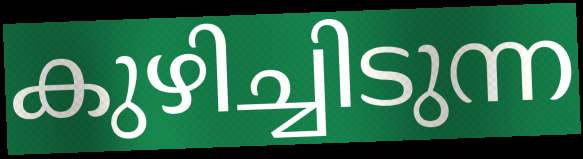
കുഴിച്ചിടുന്ന